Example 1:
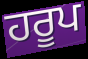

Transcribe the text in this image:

ਹਰੂਪ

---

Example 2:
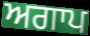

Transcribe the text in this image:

ਅਗਾਪ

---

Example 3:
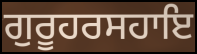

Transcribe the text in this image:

ਗੁਰੂਹਰਸਹਾਇ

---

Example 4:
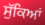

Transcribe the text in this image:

ਸੁੱਕਿਆਂ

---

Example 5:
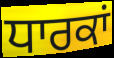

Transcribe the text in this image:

ਧਾਰਕਾਂ